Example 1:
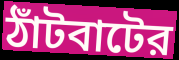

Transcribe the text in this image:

ঠাঁটবাটের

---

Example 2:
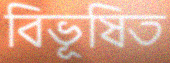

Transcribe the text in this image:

বিভূষিত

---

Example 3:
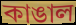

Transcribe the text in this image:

কাঙাল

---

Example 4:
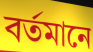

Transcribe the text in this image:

বর্তমানে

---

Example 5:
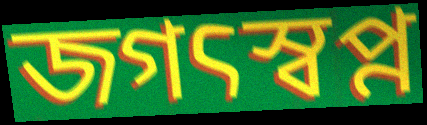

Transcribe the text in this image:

জগৎস্বপ্ন